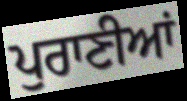
ਪੁਰਾਣੀਆਂ